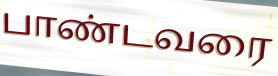
பாண்டவரை